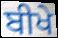
ਬੀਖੇ